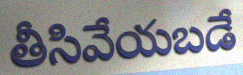
తీసివేయబడే